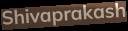
Shivaprakash